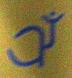
ঐঁ